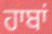
ਹਾਬਾਂ